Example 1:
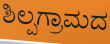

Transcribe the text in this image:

ಶಿಲ್ಪಗ್ರಾಮದ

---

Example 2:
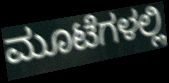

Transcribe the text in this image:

ಮೂಟೆಗಳಲ್ಲಿ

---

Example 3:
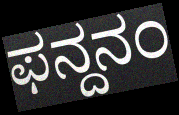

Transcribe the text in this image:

ಫನ್ದನಂ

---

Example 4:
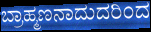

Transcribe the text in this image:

ಬ್ರಾಹ್ಮಣನಾದುದರಿಂದ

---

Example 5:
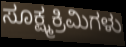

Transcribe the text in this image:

ಸೂಕ್ಷ್ಮಕ್ರಿಮಿಗಳು